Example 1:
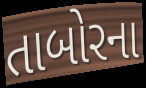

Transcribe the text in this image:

તાબોરના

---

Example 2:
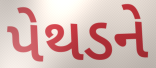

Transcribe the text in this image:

પેથડને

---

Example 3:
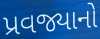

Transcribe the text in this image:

પ્રવજ્યાનો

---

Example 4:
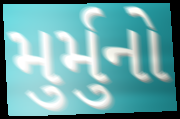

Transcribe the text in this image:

મુર્મુનો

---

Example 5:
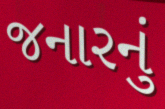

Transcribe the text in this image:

જનારનું